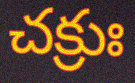
చక్రుః